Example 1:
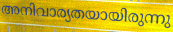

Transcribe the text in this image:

അനിവാര്യതയായിരുന്നു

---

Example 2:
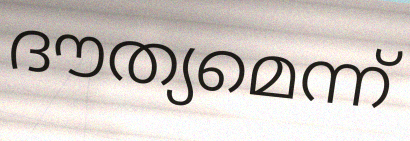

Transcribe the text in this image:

ദൗത്യമെന്ന്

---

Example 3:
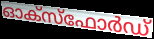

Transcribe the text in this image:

ഓക്സ്ഫോർഡ്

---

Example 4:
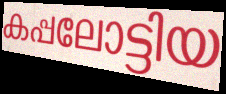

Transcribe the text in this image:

കപ്പലോട്ടിയ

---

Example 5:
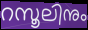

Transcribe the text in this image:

റസൂലിനും